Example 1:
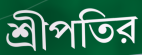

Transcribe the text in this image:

শ্রীপতির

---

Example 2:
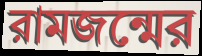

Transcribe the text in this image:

রামজন্মের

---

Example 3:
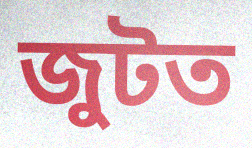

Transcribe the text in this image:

জুটত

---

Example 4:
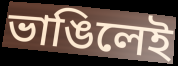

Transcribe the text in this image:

ভাঙিলেই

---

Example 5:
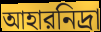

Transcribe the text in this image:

আহারনিদ্রা